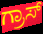
ಗ್ರಾಸ್